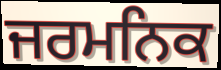
ਜਰਮਨਿਕ